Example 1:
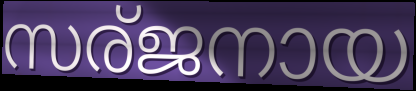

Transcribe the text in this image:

സര്ജനായ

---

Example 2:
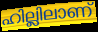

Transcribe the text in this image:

ഹില്ലിലാണ്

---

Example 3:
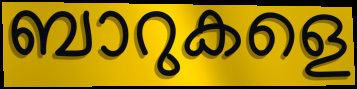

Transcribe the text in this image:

ബാറുകളെ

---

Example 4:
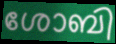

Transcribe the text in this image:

ശോബി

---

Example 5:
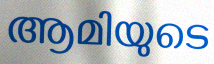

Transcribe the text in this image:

ആമിയുടെ